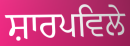
ਸ਼ਾਰਪਵਿਲੇ